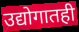
उद्योगातही